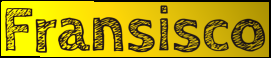
Fransisco